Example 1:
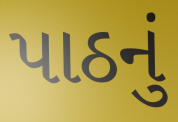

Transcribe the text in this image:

પાઠનું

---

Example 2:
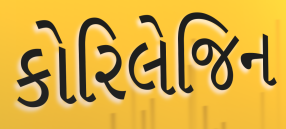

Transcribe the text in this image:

કોરિલેજિન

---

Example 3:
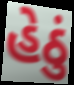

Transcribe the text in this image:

હેઠું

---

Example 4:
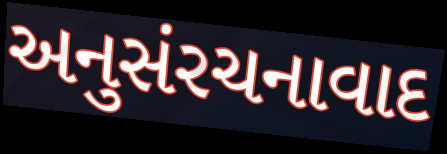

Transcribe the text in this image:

અનુસંરચનાવાદ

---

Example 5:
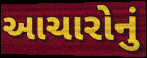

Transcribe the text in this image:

આચારોનું